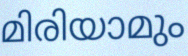
മിരിയാമും